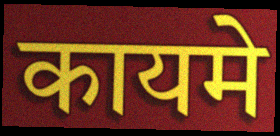
कायमे